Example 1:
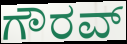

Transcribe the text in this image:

ಗೌರವ್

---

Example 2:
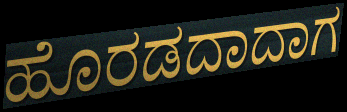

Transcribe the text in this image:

ಹೊರಡದಾದಾಗ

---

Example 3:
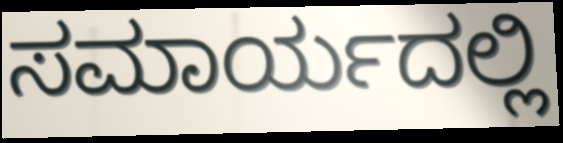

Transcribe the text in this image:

ಸಮಾರ್ಯದಲ್ಲಿ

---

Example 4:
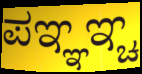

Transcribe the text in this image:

ಪಞ್ಞಞ್ಚ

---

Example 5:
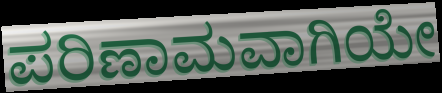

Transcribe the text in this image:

ಪರಿಣಾಮವಾಗಿಯೇ